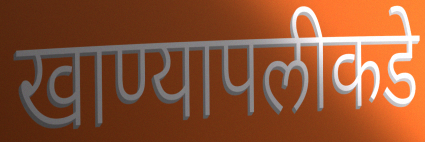
खाण्यापलीकडे